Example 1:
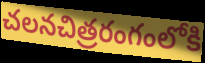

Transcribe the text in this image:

చలనచిత్రరంగంలోకి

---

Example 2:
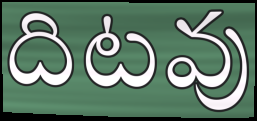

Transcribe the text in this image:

దిటవు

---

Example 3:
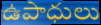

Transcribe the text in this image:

ఉపాధులు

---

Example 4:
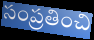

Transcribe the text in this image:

సంప్రతించి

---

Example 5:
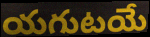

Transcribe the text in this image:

యగుటయే